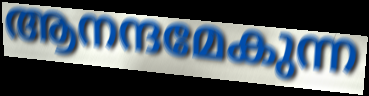
ആനന്ദമേകുന്ന